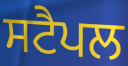
ਸਟੈਪਲ